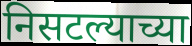
निसटल्याच्या